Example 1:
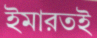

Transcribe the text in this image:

ইমারতই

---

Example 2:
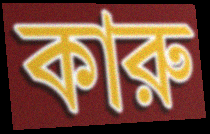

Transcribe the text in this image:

কারু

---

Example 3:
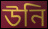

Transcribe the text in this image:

উনি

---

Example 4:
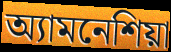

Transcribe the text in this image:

অ্যামনেশিয়া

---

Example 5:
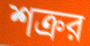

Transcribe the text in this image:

শক্রর